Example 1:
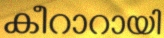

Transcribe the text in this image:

കീറാറായി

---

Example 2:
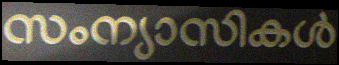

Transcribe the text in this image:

സംന്യാസികൾ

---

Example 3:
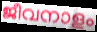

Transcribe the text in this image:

ജീവനാളം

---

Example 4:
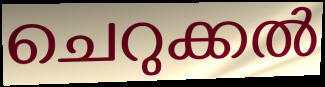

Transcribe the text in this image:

ചെറുക്കൽ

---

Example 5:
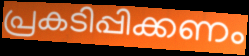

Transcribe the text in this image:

പ്രകടിപ്പിക്കണം